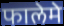
फालेमे